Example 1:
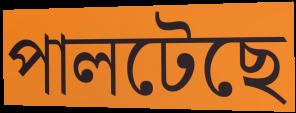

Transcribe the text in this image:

পালটেছে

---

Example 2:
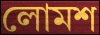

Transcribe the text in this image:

লোমশ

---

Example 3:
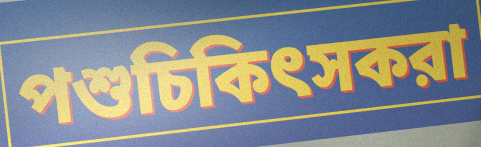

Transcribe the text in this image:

পশুচিকিৎসকরা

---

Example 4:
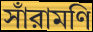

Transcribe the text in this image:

সাঁরামণি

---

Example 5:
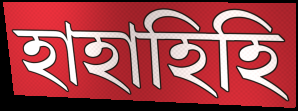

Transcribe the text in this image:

হাহাহিহি